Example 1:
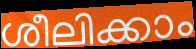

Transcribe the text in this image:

ശീലിക്കാം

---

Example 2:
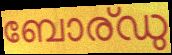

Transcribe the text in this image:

ബോര്ഡു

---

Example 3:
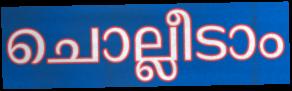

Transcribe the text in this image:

ചൊല്ലീടാം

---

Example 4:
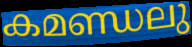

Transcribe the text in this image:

കമണ്ഡലു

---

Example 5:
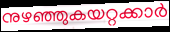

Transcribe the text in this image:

നുഴഞ്ഞുകയറ്റക്കാർ